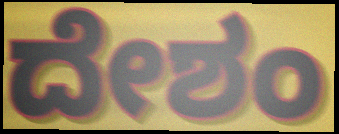
ದೇಶಂ